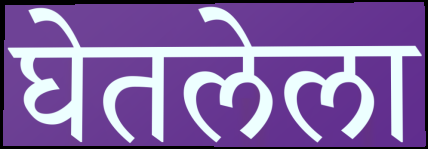
घेतलेला